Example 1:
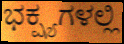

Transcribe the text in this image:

ಭಕ್ಷ್ಯಗಳಲ್ಲಿ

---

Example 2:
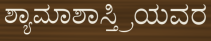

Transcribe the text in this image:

ಶ್ಯಾಮಾಶಾಸ್ತ್ರಿಯವರ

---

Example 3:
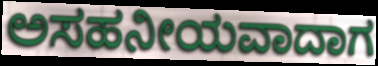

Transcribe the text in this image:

ಅಸಹನೀಯವಾದಾಗ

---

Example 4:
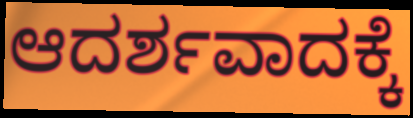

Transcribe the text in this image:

ಆದರ್ಶವಾದಕ್ಕೆ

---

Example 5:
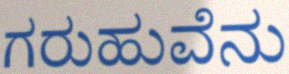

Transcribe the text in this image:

ಗರುಹುವೆನು